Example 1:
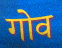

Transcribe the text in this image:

गोव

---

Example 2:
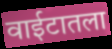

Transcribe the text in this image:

वाईटातला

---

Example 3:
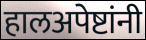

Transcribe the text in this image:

हालअपेष्टांनी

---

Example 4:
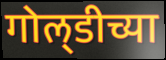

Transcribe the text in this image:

गोल्डीच्या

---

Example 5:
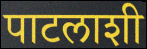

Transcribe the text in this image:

पाटलाशी